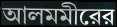
আলমমীরের